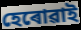
হেৰোৱাই